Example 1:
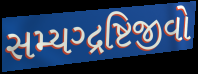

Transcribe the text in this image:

સમ્યગ્દ્રષ્ટિજીવો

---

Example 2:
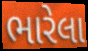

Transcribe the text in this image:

ભારેલા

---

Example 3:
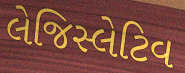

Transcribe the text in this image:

લેજિસ્લેટિવ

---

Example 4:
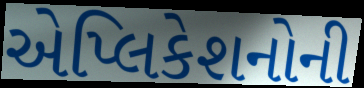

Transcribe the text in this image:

એપ્લિકેશનોની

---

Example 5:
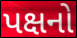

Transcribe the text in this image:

પક્ષનો